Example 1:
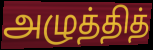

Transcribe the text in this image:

அழுத்தித்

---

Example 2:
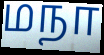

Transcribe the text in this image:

மநா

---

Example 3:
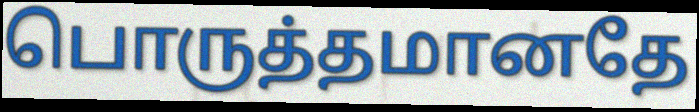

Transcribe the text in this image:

பொருத்தமானதே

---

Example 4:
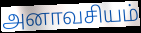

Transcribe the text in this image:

அனாவசியம்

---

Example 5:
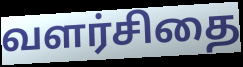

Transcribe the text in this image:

வளர்சிதை